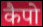
कैपो